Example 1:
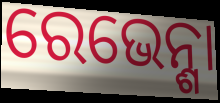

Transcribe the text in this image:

ରେଭେନ୍ଶା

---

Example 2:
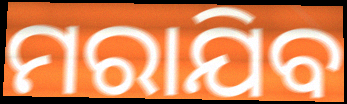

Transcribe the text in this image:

ମରାଯିବ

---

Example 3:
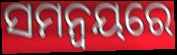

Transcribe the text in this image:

ସମନ୍ବୟରେ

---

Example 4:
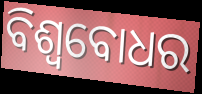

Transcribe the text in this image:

ବିଶ୍ବବୋଧର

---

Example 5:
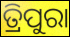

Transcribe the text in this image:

ତ୍ରିପୁରା